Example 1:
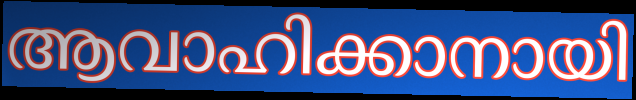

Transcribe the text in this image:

ആവാഹിക്കാനായി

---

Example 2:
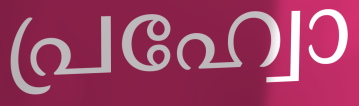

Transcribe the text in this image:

പ്രഹ്വോ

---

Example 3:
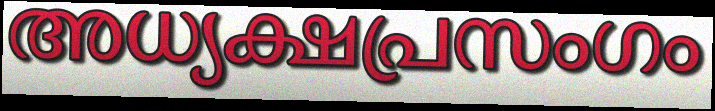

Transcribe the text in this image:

അധ്യക്ഷപ്രസംഗം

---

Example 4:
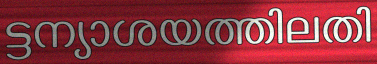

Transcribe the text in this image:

ട്ടന്യാശയത്തിലതി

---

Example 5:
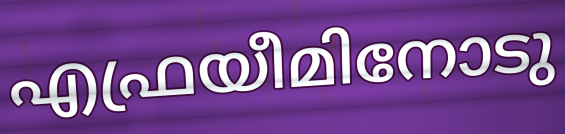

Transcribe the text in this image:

എഫ്രയീമിനോടു